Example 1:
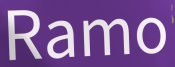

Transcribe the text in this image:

Ramo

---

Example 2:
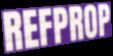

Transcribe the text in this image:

REFPROP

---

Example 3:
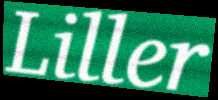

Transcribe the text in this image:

Liller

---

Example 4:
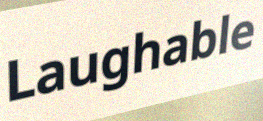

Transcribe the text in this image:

Laughable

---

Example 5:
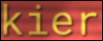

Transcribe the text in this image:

kier